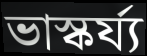
ভাস্কৰ্য্য